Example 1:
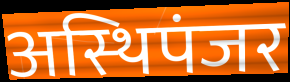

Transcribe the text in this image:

अस्थिपंजर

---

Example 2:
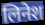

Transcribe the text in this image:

लिनेश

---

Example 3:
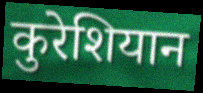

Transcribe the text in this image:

कुरेशियान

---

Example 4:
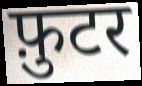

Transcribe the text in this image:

फ़ुटर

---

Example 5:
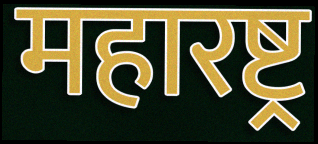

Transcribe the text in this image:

महारष्ट्र